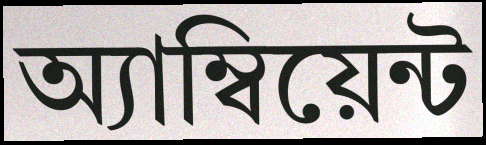
অ্যাম্বিয়েন্ট